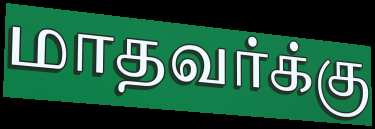
மாதவர்க்கு